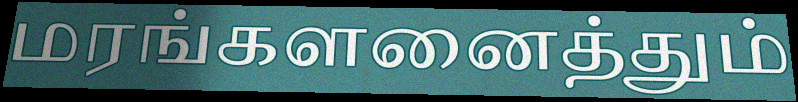
மரங்களனைத்தும்